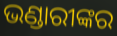
ଭଣ୍ଡାରୀଙ୍କର